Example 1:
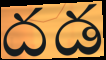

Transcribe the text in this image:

దడ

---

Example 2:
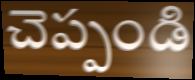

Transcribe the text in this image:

చెప్పండి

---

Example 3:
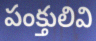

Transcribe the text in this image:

పంక్తులివి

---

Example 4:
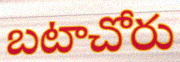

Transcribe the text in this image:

బటాచోరు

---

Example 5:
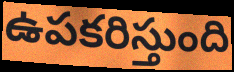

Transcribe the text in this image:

ఉపకరిస్తుంది